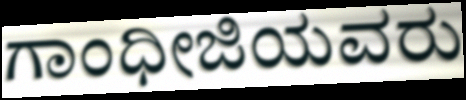
ಗಾಂಧೀಜಿಯವರು